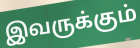
இவருக்கும்